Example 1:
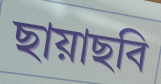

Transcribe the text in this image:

ছায়াছবি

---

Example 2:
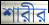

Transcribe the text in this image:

শারীর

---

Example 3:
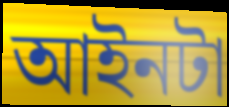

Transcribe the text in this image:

আইনটা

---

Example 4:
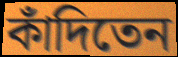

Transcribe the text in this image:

কাঁদিতেন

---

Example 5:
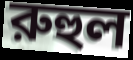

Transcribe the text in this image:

রুহুল